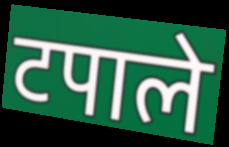
टपाले